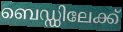
ബെഡ്ഡിലേക്ക്